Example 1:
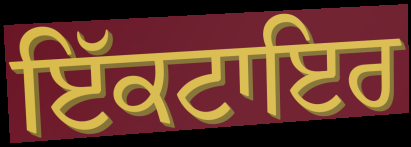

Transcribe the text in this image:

ਇੱਕਟਾਇਰ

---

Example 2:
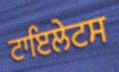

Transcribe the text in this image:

ਟਾਇਲੇਟਸ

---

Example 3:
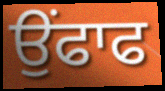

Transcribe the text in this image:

ਉੰਫਾਫ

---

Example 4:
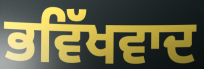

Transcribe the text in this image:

ਭਵਿੱਖਵਾਦ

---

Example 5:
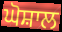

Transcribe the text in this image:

ਘੋਸ਼ਾਲ